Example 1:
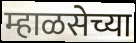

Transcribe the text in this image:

म्हाळसेच्या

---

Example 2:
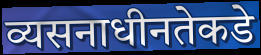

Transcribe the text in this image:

व्यसनाधीनतेकडे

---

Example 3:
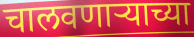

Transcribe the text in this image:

चालवणार्‍याच्या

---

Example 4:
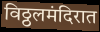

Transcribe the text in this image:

विठ्ठलमंदिरात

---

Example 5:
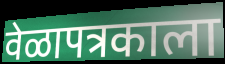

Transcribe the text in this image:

वेळापत्रकाला